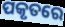
ପକୃତରେ